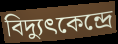
বিদ্যুৎকেন্দ্রে